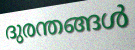
ദുരന്തങ്ങൾ